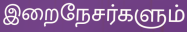
இறைநேசர்களும்